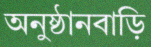
অনুষ্ঠানবাড়ি